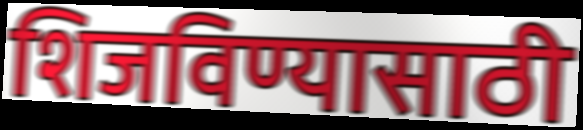
शिजविण्यासाठी